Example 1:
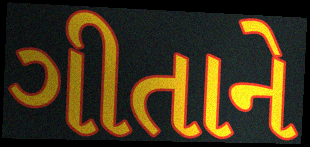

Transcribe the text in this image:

ગીતાને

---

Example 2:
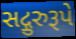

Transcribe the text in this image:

સદ્ગુરુરૂપે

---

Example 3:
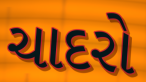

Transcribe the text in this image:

ચાદરો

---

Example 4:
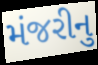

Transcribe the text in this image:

મંજરીનુ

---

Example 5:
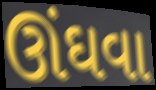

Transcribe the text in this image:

ઊંઘવા